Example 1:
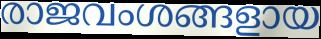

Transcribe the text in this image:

രാജവംശങ്ങളായ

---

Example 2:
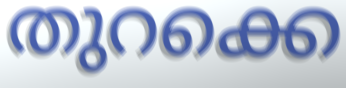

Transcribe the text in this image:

തുറക്കെ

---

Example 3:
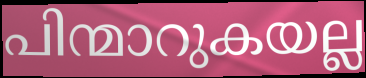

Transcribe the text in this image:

പിന്മാറുകയല്ല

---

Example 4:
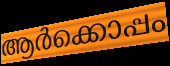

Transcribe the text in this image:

ആർക്കൊപ്പം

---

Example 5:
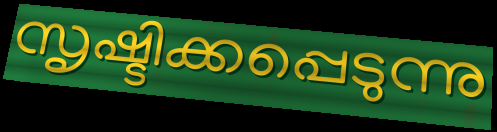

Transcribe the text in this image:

സൃഷ്ടിക്കപ്പെടുന്നു